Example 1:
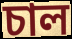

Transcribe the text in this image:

চাল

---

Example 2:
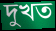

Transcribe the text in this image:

দুখত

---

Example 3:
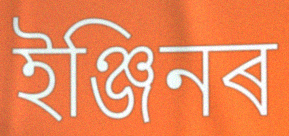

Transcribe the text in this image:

ইঞ্জিনৰ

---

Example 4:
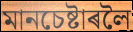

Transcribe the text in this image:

মানচেষ্টাৰলৈ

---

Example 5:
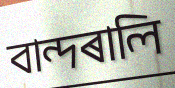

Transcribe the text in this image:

বান্দৰালি